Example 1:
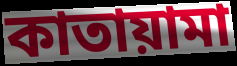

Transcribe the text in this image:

কাতায়ামা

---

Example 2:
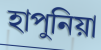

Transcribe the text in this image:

হাপুনিয়া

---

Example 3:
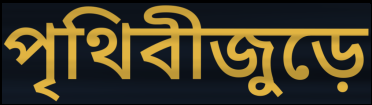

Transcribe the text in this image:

পৃথিবীজুড়ে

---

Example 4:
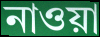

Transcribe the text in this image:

নাওয়া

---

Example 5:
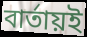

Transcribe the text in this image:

বার্তায়ই